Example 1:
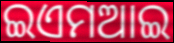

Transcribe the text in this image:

ଇଏମଆଇ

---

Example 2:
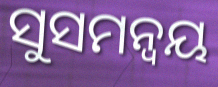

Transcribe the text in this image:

ସୁସମନ୍ୱୟ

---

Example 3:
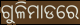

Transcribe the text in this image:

ଗୁଳିମାଡରେ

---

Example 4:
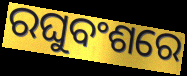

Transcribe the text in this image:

ରଘୁବଂଶରେ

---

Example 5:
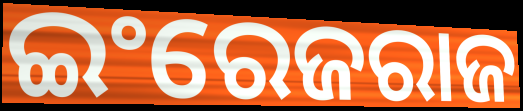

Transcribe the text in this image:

ଇଂରେଜରାଜ